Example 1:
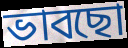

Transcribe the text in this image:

ভাবছো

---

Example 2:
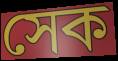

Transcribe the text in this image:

সেক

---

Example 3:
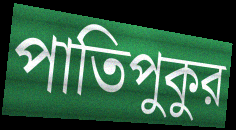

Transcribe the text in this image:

পাতিপুকুর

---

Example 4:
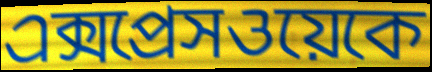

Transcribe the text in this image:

এক্সপ্রেসওয়েকে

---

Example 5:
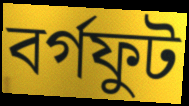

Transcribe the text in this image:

বর্গফুট